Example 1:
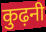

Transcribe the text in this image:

कुढ़नी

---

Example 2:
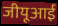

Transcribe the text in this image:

जीयूआई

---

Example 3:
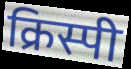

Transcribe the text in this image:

क्रिस्पी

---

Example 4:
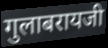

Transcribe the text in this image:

गुलाबरायजी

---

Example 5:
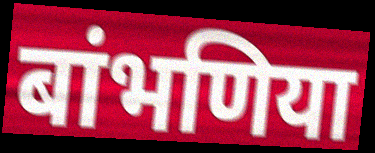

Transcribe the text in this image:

बांभणिया